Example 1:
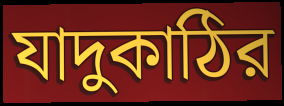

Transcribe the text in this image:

যাদুকাঠির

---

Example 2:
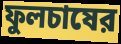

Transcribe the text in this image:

ফুলচাষের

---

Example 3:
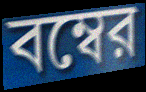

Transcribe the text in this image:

বম্বের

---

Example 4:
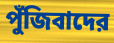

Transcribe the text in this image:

পুঁজিবাদের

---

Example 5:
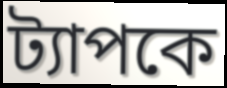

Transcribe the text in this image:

ট্যাপকে